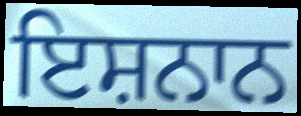
ਇਸ਼ਨਾਨ